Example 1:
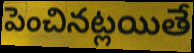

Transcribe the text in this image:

పెంచినట్లయితే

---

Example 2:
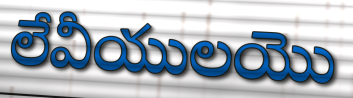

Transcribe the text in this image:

లేవీయులయొ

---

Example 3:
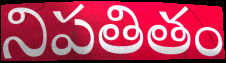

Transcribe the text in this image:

నిపతితం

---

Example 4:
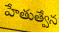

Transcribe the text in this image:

హేతుత్వేన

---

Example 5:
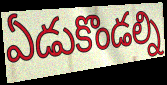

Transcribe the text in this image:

ఏడుకొండల్ని